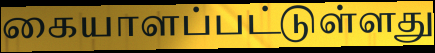
கையாளப்பட்டுள்ளது